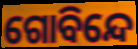
ଗୋବିନ୍ଦେ